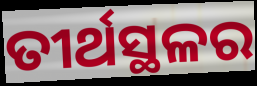
ତୀର୍ଥସ୍ଥଳର